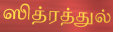
ஸித்ரத்துல்